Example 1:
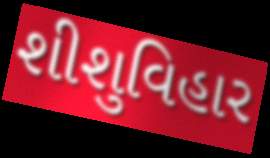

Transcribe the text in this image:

શીશુવિહાર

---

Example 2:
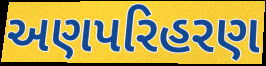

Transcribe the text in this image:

અણપરિહરણ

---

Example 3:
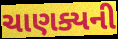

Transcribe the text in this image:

ચાણક્યની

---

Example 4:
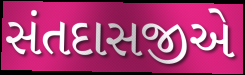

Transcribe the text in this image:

સંતદાસજીએ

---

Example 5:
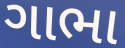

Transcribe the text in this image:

ગાભા